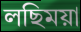
লছিময়া